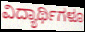
ವಿದ್ಯಾರ್ಥಿಗಳೂ